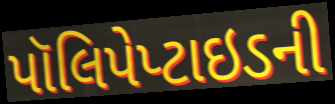
પૉલિપેપ્ટાઇડની